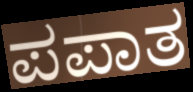
ಪಪಾತ